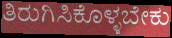
ತಿರುಗಿಸಿಕೊಳ್ಳಬೇಕು